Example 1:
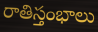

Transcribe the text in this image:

రాతిస్తంభాలు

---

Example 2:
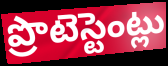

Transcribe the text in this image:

ప్రొటెస్టెంట్లు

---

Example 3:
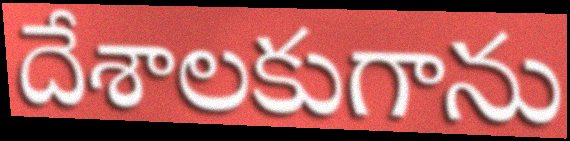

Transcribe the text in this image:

దేశాలకుగాను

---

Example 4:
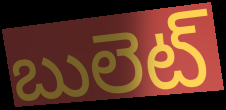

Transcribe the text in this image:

బులెట్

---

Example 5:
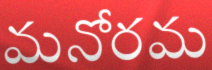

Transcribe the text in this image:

మనోరమ